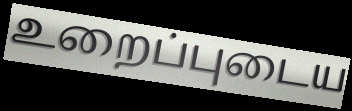
உறைப்புடைய